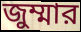
জুম্মার